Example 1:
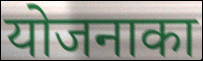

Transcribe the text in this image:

योजनाका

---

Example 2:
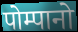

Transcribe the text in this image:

पोम्पानो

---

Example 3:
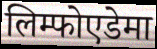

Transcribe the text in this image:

लिम्फोएडेमा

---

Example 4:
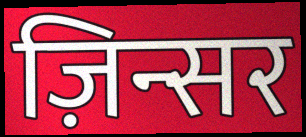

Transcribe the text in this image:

ज़िन्सर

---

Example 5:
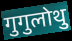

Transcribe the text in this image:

गुगुलोथु